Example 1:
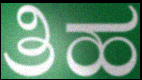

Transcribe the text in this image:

ತಿಹ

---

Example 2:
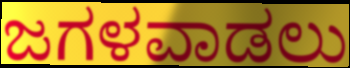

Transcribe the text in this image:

ಜಗಳವಾಡಲು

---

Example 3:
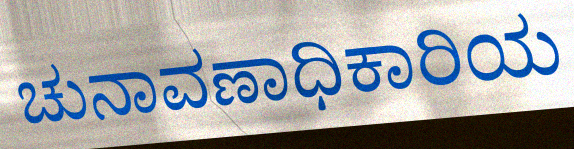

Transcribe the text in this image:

ಚುನಾವಣಾಧಿಕಾರಿಯ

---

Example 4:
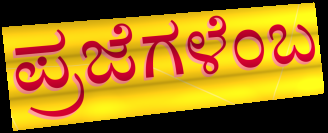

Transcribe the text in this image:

ಪ್ರಜೆಗಳೆಂಬ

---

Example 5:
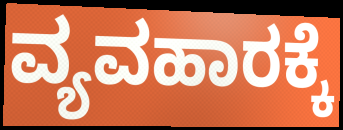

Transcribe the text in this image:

ವ್ಯವಹಾರಕ್ಕೆ